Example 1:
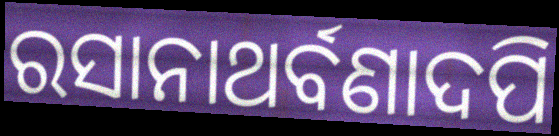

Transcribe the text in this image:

ରସାନାଥର୍ବଣାଦପି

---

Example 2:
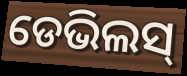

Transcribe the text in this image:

ଡେଭିଲସ୍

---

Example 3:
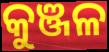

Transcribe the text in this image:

କୁଞ୍ଜଳ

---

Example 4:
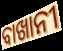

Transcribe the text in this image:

ବାଖାନୀ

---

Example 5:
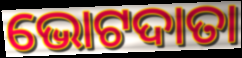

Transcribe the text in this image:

ଭୋଟଦାତା